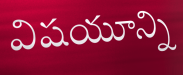
విషయూన్ని